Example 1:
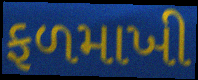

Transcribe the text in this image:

ફળમાખી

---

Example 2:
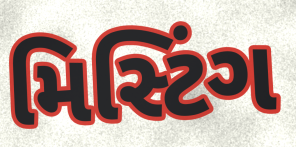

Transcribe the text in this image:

મિસ્ટિંગ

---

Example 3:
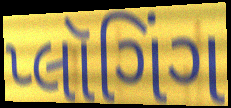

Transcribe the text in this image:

પ્લૉગિંગ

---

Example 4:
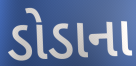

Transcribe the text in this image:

ડોડાના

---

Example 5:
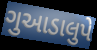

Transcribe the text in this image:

ગુઆડાલુપે